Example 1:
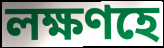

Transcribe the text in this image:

লক্ষণহে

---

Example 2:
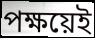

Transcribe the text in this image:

পক্ষয়েই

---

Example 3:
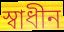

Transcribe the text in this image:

স্ৱাধীন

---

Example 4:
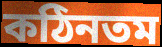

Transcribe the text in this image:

কঠিনতম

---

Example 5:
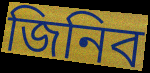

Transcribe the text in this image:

জিনিব